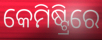
କେମିଷ୍ଟ୍ରିରେ